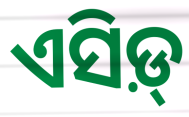
ଏସିଡ଼୍